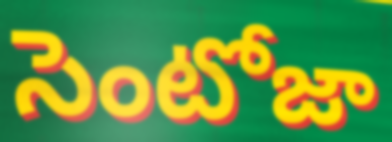
సెంటోజా